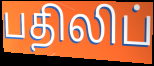
பதிலிப்